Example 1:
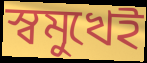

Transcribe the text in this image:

স্বমুখেই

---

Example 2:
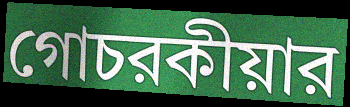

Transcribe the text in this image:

গোচরকীয়ার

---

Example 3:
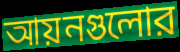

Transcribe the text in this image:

আয়নগুলোর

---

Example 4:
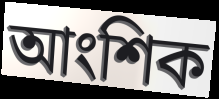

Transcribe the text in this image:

আংশিক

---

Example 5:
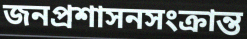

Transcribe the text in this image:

জনপ্রশাসনসংক্রান্ত